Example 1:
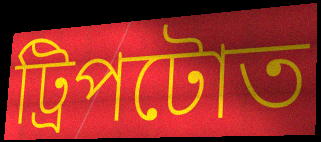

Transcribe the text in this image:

ট্ৰিপটোত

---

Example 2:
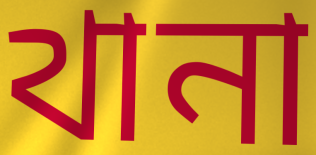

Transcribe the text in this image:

থানা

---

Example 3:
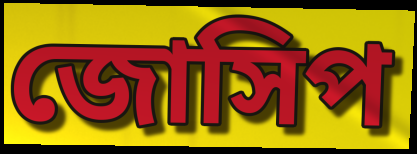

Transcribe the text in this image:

জোসিপ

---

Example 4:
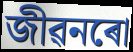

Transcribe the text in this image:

জীৱনৰো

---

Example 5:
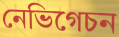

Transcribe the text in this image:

নেভিগেচন